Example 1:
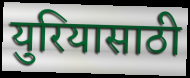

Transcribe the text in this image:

युरियासाठी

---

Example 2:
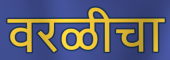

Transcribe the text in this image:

वरळीचा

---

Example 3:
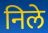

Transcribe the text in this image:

निले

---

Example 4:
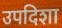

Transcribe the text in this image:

उपदिशा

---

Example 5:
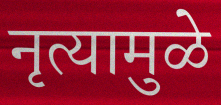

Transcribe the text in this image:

नृत्यामुळे